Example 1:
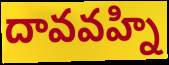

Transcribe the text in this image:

దావవహ్ని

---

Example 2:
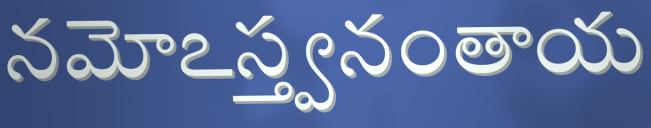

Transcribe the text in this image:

నమోఽస్త్వనంతాయ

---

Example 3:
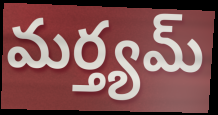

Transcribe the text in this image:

మర్త్యమ్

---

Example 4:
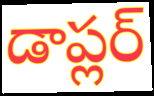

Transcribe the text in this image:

డాప్లర్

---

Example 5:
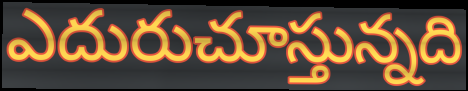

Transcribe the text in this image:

ఎదురుచూస్తున్నది